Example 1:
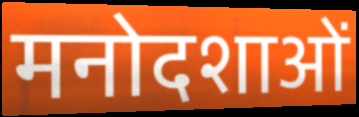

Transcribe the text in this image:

मनोदशाओं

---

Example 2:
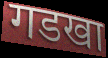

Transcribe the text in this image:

गडखा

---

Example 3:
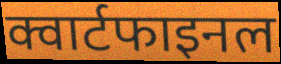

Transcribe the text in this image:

क्वार्टफाइनल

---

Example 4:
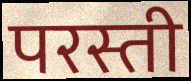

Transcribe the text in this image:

परस्ती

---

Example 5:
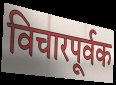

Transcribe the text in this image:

विचारपूर्वक